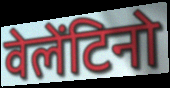
वेलेंटिनो